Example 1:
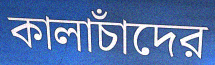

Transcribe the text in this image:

কালাচাঁদের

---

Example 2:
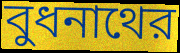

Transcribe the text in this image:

বুধনাথের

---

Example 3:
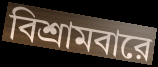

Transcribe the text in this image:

বিশ্রামবারে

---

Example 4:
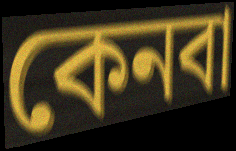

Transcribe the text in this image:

কেনবা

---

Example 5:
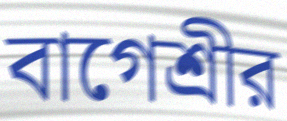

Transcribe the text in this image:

বাগেশ্রীর